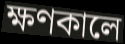
ক্ষণকালে